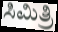
ಸಿಮಿತ್ರಿ